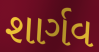
શાર્ગવ